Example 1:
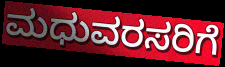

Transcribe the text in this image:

ಮಧುವರಸರಿಗೆ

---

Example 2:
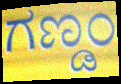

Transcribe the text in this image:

ಗಣ್ಡಂ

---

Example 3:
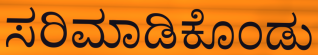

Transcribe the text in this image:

ಸರಿಮಾಡಿಕೊಂಡು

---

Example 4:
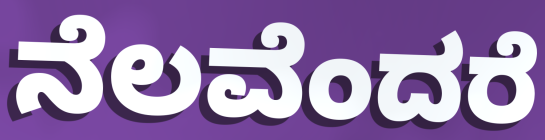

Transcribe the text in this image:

ನೆಲವೆಂದರೆ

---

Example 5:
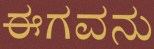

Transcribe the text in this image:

ಈಗವನು